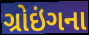
ગ્રોઇંગના